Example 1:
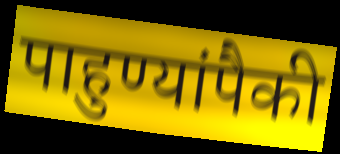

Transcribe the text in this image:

पाहुण्यांपैकी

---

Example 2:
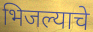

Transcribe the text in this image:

भिजल्याचे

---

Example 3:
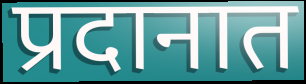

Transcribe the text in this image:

प्रदानात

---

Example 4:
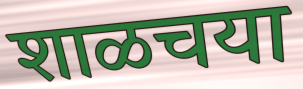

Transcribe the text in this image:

शाळचया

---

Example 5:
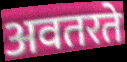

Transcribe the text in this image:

अवतरते